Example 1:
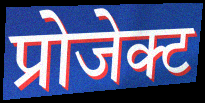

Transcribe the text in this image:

प्रोजेक्ट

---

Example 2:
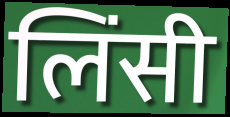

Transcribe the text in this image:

लिंसी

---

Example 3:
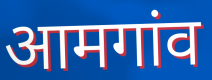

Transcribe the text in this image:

आमगांव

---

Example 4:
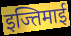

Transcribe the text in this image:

इज्तिमाई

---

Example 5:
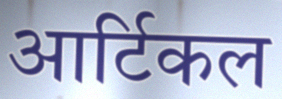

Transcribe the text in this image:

आर्टिकल